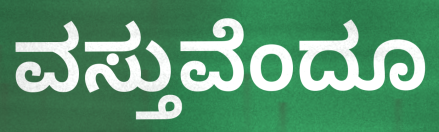
ವಸ್ತುವೆಂದೂ